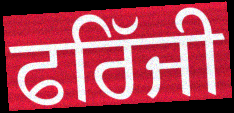
ਫਰਿੱਜੀ